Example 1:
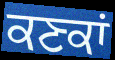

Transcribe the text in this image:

ਕਣਕਾਂ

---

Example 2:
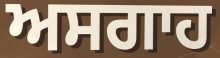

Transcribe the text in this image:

ਅਸਗਾਹ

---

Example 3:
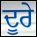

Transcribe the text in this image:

ਦੂਰੇ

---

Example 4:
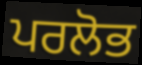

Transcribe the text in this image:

ਪਰਲੋਭ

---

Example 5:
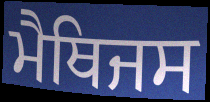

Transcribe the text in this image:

ਮੈਥਿਜਸ